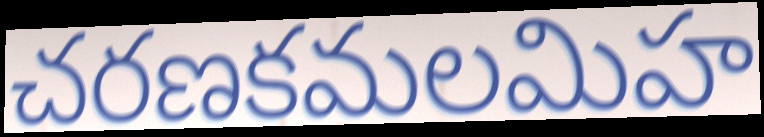
చరణకమలమిహ